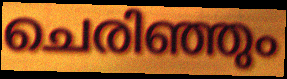
ചെരിഞ്ഞും